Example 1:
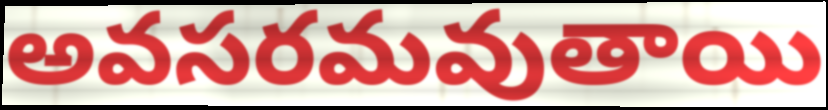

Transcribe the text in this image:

అవసరమవుతాయి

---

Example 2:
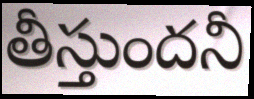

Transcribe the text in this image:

తీస్తుందనీ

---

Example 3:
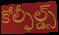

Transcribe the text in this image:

కోల్ఫీల్డ్స్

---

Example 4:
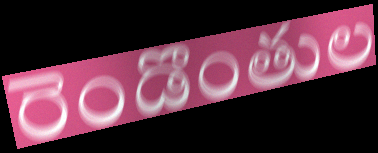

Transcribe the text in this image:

రెండొంతుల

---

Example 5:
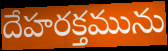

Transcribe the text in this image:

దేహరక్తమును